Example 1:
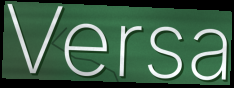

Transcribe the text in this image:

Versa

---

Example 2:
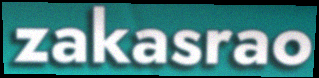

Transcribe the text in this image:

zakasrao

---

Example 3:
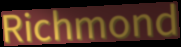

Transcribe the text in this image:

Richmond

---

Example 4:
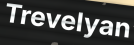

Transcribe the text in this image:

Trevelyan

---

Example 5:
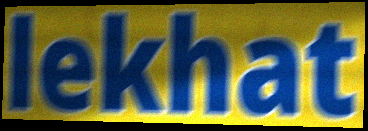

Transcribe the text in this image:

lekhat